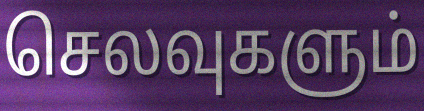
செலவுகளும்